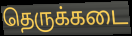
தெருக்கடை